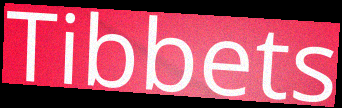
Tibbets